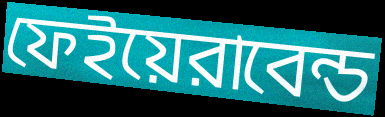
ফেইয়েরাবেন্ড